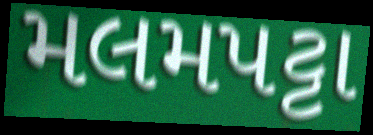
મલમપટ્ટા